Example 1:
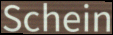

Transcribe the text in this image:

Schein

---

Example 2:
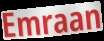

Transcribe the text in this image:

Emraan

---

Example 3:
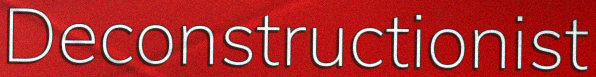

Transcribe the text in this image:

Deconstructionist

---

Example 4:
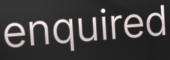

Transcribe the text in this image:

enquired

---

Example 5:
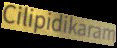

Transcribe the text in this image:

Cilipidikaram